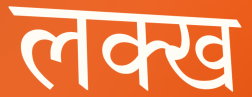
लक्ख